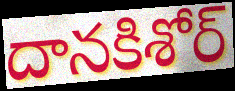
దానకిశోర్